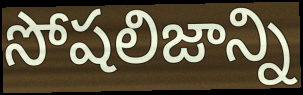
సోషలిజాన్ని